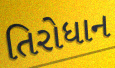
તિરોધાન